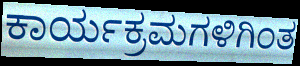
ಕಾರ್ಯಕ್ರಮಗಳಿಗಿಂತ